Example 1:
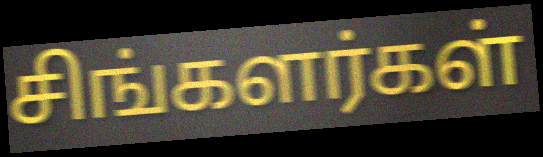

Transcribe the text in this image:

சிங்களர்கள்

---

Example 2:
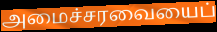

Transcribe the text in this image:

அமைச்சரவையைப்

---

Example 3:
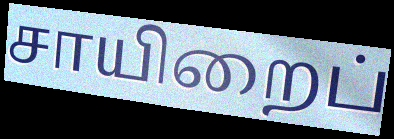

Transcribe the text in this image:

சாயிறைப்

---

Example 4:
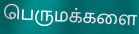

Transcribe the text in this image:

பெருமக்களை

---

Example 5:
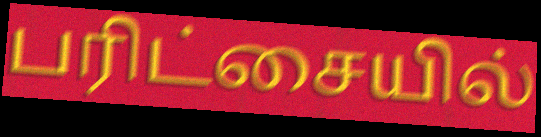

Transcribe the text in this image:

பரிட்சையில்